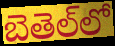
బెతెల్‌లో